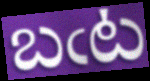
బఁట